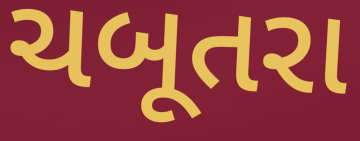
ચબૂતરા